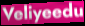
Veliyeedu